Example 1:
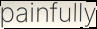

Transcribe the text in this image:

painfully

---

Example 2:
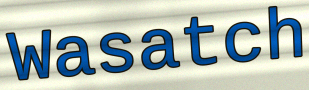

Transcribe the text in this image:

Wasatch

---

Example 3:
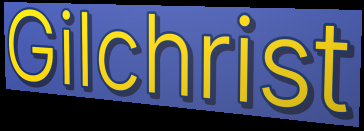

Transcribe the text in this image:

Gilchrist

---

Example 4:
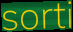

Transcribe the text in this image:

sorti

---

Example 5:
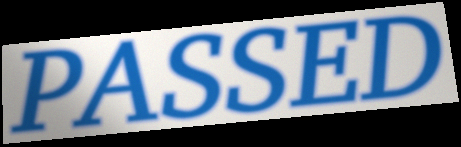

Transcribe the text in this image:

PASSED